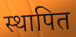
स्थापित